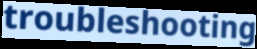
troubleshooting